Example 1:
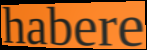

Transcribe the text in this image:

habere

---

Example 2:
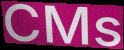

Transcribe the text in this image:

CMs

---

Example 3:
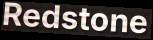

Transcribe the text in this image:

Redstone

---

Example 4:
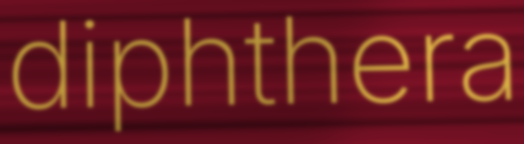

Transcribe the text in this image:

diphthera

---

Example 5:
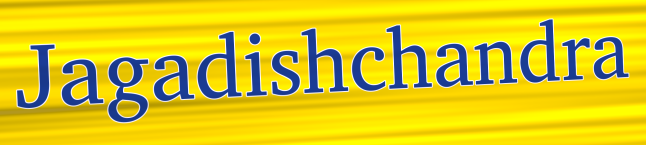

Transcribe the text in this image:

Jagadishchandra